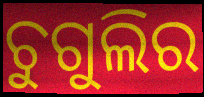
ଚୁଗୁଲିର